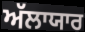
ਅੱਲਾਯਾਰ